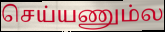
செய்யணும்ல